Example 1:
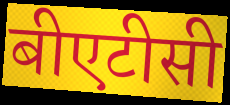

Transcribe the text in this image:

बीएटीसी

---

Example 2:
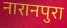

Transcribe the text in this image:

नारानपुरा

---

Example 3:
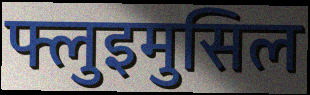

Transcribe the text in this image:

फ्लुइमुसिल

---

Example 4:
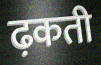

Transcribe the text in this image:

ढ़कती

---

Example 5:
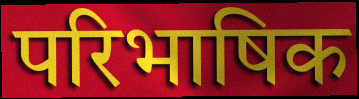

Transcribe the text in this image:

परिभाषिक